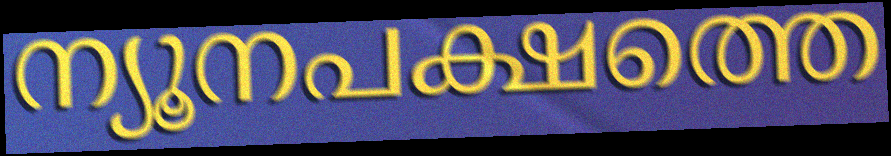
ന്യൂനപക്ഷത്തെ